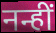
नन्हीं